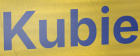
Kubie